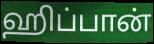
ஹிப்பான்